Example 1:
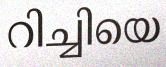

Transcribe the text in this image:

റിച്ചിയെ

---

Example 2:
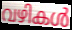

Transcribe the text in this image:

വഴികൾ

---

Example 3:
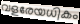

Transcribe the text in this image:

വളരേയധികം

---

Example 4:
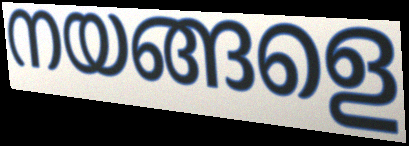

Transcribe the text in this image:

നയങ്ങളെ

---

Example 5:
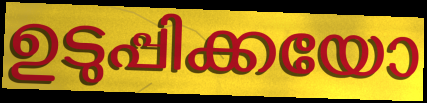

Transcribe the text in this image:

ഉടുപ്പിക്കയോ